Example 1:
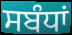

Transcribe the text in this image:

ਸਬੰਧਾਂ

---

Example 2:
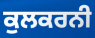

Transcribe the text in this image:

ਕੁਲਕਰਨੀ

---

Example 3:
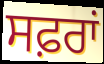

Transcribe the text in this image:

ਸਫ਼ਰਾਂ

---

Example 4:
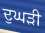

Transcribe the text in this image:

ਦੁਘੜੀ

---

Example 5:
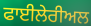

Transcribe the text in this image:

ਫਾਈਲੇਰੀਅਲ